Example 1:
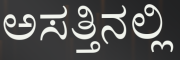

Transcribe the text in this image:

ಅಸತ್ತಿನಲ್ಲಿ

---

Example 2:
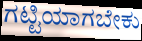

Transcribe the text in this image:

ಗಟ್ಟಿಯಾಗಬೇಕು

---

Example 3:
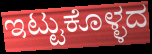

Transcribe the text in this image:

ಇಟ್ಟುಕೊಳ್ಳದ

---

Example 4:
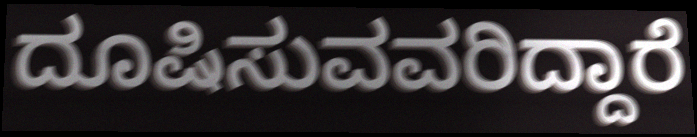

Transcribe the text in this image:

ದೂಷಿಸುವವರಿದ್ದಾರೆ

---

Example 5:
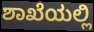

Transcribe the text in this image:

ಶಾಖೆಯಲ್ಲಿ